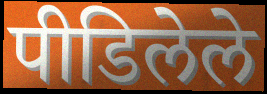
पीडिलेले